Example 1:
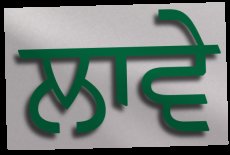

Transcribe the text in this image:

ਲਾਵੇ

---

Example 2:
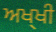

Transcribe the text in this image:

ਅਖ੍ਖੀ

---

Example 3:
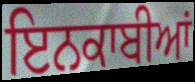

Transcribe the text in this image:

ਇਨਕਾਬੀਆਂ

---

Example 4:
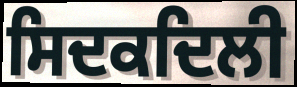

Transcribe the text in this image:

ਸਿਦਕਦਿਲੀ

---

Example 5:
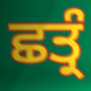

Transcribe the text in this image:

ਛਤ੍ਰੰ